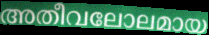
അതീവലോലമായ